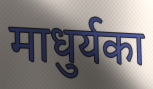
माधुर्यका